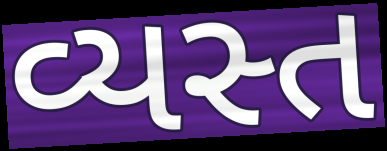
વ્યસ્ત